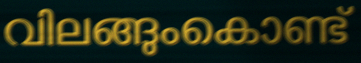
വിലങ്ങുംകൊണ്ട്